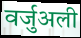
वर्जुअली